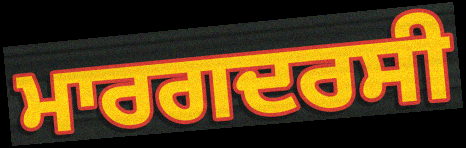
ਮਾਰਗਦਰਸੀ